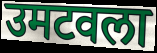
उमटवला